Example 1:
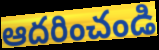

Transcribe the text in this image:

ఆదరించండి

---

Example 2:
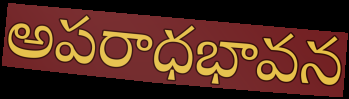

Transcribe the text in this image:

అపరాధభావన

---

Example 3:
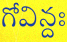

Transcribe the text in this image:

గోవిన్దః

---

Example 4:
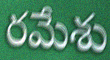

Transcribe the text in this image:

రమేశు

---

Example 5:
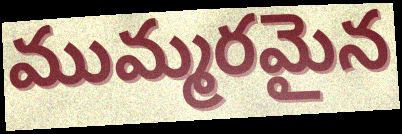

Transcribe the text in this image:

ముమ్మరమైన